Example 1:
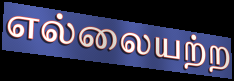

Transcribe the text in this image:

எல்லையற்ற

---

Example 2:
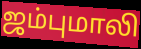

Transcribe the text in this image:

ஜம்புமாலி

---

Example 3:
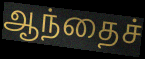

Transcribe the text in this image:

ஆந்தைச்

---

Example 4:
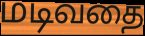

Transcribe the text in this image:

மடிவதை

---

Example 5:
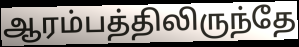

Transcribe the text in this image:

ஆரம்பத்திலிருந்தே